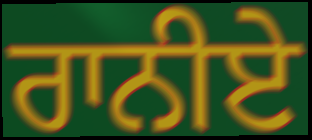
ਰਾਨੀਏ